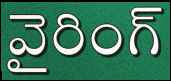
వైరింగ్